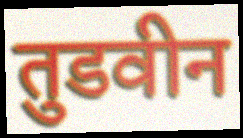
तुडवीन